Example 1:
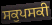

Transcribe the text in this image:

ਸਕੁਪਸਕੀ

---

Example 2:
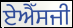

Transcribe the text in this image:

ਏਐੱਸਜੀ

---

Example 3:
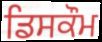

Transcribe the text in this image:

ਡਿਸਕੌਮ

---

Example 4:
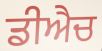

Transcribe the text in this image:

ਡੀਐਚ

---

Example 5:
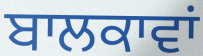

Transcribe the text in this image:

ਬਾਲਕਾਵਾਂ